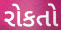
રોકતો